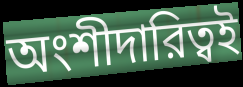
অংশীদারিত্বই